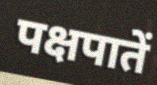
पक्षपातें